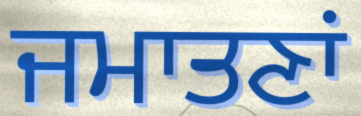
ਜਮਾਤਣਾਂ